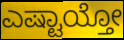
ಎಷ್ಟಾಯ್ತೋ